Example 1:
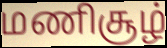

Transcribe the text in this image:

மணிசூழ்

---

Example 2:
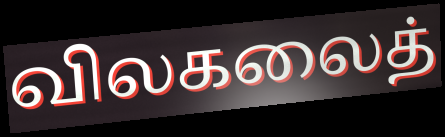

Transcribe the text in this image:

விலகலைத்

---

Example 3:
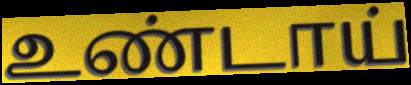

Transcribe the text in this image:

உண்டாய்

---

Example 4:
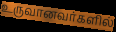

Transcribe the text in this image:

உருவானவர்களில்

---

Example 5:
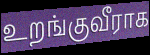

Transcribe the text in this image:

உறங்குவீராக